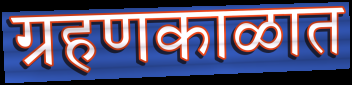
ग्रहणकाळात